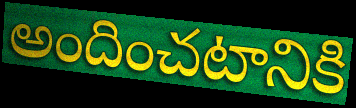
అందించటానికి